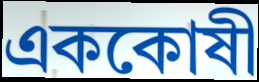
এককোষী